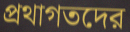
প্রথাগতদের